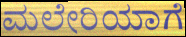
ಮಲೇರಿಯಾಗೆ